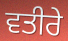
ਵਤੀਰੇ